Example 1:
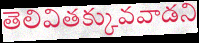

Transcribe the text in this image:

తెలివితక్కువవాడని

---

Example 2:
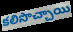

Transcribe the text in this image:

కలిసొచ్చాయి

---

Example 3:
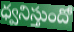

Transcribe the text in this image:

ధ్వనిస్తుందో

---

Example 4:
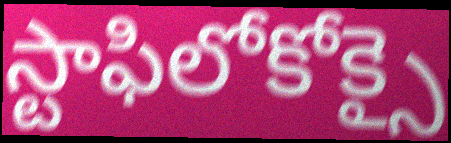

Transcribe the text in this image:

స్టాఫిలోకోక్సై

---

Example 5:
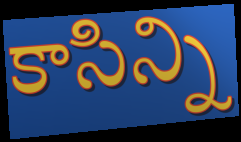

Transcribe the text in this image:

కాసిన్ని